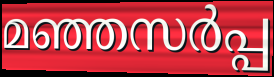
മഞ്ഞസർപ്പ